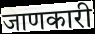
जाणकारी